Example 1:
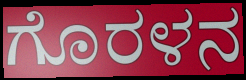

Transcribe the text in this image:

ಗೊರಳನ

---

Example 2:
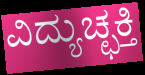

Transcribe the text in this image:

ವಿದ್ಯುಚ್ಛಕ್ತಿ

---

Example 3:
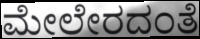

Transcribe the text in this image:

ಮೇಲೇರದಂತೆ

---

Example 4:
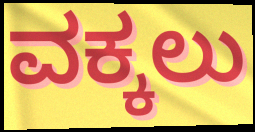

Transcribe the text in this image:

ವಕ್ಕಲು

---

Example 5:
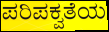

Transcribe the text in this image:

ಪರಿಪಕ್ವತೆಯ